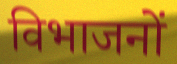
विभाजनों